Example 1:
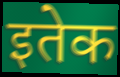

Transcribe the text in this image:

इतेक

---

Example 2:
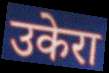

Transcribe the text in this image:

उकेरा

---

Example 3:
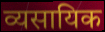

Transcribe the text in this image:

व्यसायिक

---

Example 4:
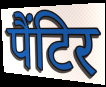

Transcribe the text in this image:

पैंटिर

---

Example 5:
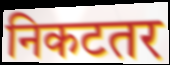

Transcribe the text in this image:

निकटतर